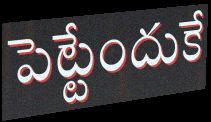
పెట్టేందుకే